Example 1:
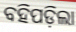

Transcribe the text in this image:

ବହିପଡ଼ିଲା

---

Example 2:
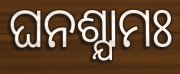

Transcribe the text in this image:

ଘନଶ୍ଯାମଃ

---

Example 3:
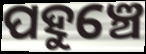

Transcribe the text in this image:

ପହୁଞ୍ଚେ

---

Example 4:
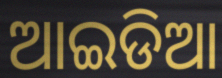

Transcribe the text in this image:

ଆଇଡିଆ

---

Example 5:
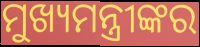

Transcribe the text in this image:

ମୁଖ୍ୟମନ୍ତ୍ରୀଙ୍କର